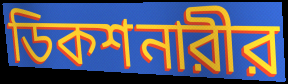
ডিকশনারীর